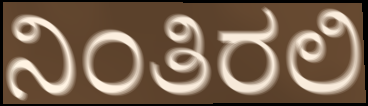
ನಿಂತಿರಲಿ